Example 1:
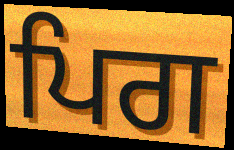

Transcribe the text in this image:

ਪਿਗ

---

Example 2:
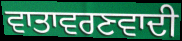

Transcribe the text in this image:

ਵਾਤਾਵਰਣਵਾਦੀ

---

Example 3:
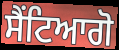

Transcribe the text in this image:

ਸੈਂਟਿਆਗੋ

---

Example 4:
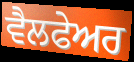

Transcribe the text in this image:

ਵੈਲਫੇਅਰ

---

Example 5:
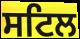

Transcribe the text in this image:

ਸਟਿਲ